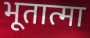
भूतात्मा